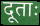
दूताः